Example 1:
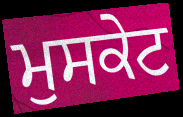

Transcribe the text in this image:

ਮੁਸਕੇਟ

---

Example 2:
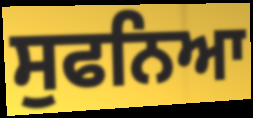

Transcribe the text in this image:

ਸੁਫਨਿਆ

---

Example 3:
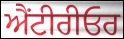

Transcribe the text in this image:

ਐਂਟੀਰੀਓਰ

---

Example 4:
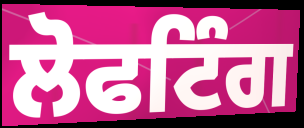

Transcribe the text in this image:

ਲੋਫਟਿੰਗ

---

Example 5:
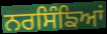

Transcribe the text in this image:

ਨਰਸਿੰਙਿਆਂ